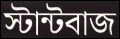
স্টান্টবাজ